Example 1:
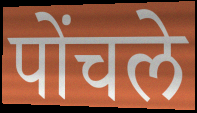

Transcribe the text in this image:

पोंचले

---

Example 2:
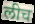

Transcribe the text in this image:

लीच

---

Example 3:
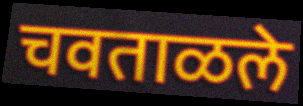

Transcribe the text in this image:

चवताळले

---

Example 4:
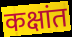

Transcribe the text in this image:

कक्षांत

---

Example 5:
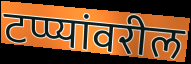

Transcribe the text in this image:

टप्प्यांवरील